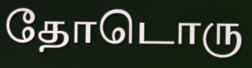
தோடொரு